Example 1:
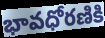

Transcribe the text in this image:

భావధోరణికి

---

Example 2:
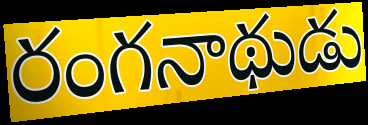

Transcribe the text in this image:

రంగనాథుడు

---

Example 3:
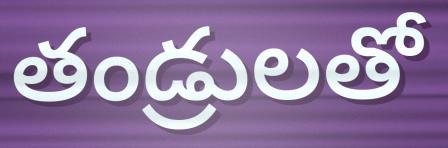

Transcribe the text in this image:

తండ్రులతో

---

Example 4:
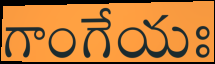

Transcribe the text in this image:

గాంగేయః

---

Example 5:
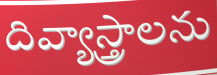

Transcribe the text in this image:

దివ్యాస్త్రాలను